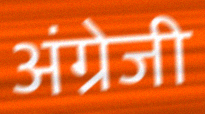
अंग्रेजी